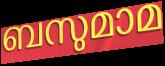
ബസുമാമ